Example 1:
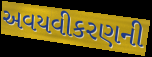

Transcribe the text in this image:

અવયવીકરણની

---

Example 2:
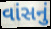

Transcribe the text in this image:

વાંસનું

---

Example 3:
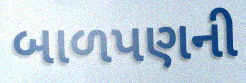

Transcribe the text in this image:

બાળપણની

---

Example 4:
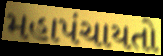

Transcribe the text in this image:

મહાપંચાયતો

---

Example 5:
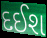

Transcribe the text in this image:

દઈશ